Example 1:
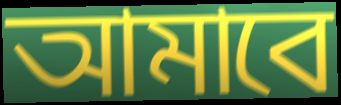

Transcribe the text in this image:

আমাবে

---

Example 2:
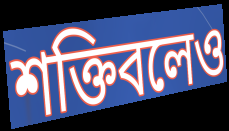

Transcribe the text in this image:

শক্তিবলেও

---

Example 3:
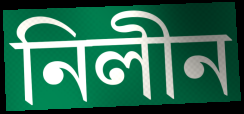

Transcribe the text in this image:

নিলীন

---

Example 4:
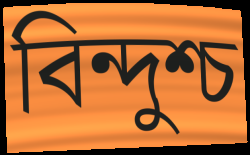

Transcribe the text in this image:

বিন্দুশ্চ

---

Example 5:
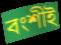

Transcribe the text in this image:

বংশীই